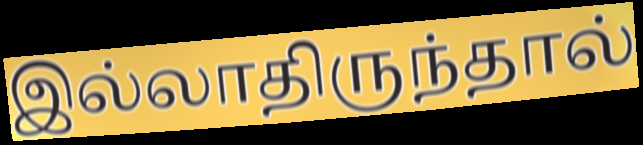
இல்லாதிருந்தால்